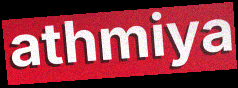
athmiya